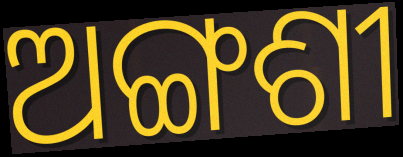
ଅଙ୍ଗଶୀ